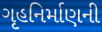
ગૃહનિર્માણની